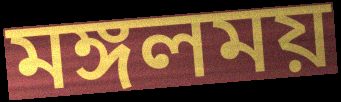
মঙ্গলময়